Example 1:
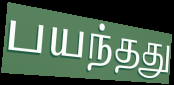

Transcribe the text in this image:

பயந்தது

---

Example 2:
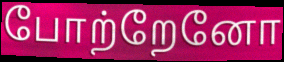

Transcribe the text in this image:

போற்றேனோ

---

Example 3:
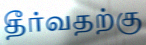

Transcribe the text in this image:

தீர்வதற்கு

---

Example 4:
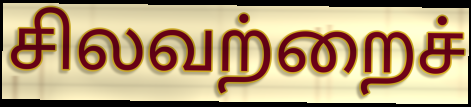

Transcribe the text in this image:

சிலவற்றைச்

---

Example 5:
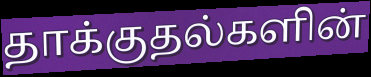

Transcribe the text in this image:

தாக்குதல்களின்